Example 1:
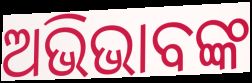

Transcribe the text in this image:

ଅଭିଭାବଙ୍କ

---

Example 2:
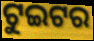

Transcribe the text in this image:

ଟୁଇଟର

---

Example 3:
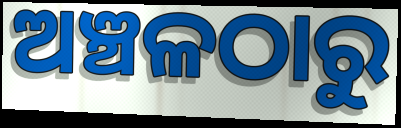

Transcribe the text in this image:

ଅଞ୍ଚଳଠାରୁ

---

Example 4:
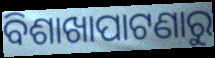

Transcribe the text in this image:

ବିଶାଖାପାଟଣାରୁ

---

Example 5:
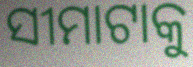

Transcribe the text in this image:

ସୀମାଟାକୁ